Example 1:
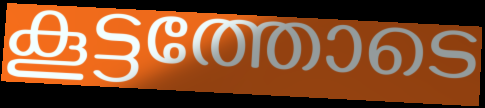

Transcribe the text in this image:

കൂട്ടത്തോടെ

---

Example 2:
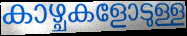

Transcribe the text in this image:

കാഴ്ചകളോടുള്ള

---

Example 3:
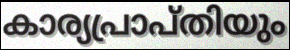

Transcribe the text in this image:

കാര്യപ്രാപ്തിയും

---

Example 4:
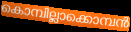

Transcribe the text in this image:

കൊമ്പില്ലാക്കൊമ്പൻ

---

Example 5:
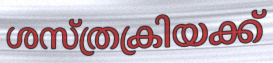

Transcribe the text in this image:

ശസ്ത്രക്രിയക്ക്